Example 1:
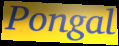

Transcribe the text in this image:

Pongal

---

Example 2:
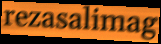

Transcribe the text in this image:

rezasalimag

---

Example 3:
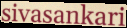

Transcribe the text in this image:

sivasankari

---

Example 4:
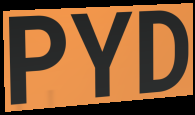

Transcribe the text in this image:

PYD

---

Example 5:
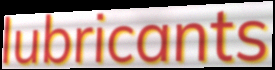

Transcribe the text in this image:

lubricants